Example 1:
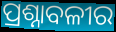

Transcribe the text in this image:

ପ୍ରଶ୍ନାବଳୀର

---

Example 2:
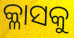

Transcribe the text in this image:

କ୍ଳାସକୁ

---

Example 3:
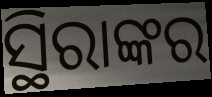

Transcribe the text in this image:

ସ୍ଥିରାଙ୍କର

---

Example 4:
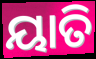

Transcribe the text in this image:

ୟାତି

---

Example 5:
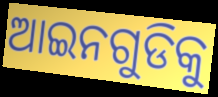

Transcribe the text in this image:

ଆଇନଗୁଡିକୁ